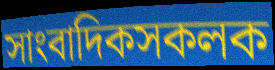
সাংবাদিকসকলক